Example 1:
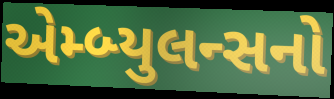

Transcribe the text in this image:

એમ્બ્યુલન્સનો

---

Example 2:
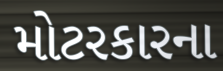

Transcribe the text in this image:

મોટરકારના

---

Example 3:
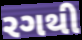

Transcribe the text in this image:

રગથી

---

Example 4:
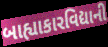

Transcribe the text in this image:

બાહ્યાકારવિદ્યાની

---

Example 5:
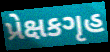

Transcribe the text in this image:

પ્રેક્ષકગૃહ